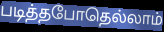
படித்தபோதெல்லாம்